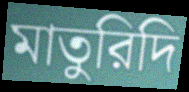
মাতুরিদি